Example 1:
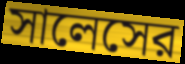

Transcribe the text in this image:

সালেসের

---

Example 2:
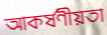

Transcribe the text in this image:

আকর্ষণীয়তা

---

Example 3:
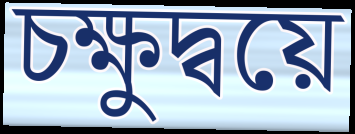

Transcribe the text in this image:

চক্ষুদ্বয়ে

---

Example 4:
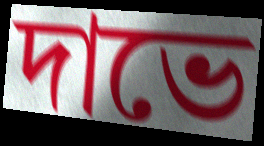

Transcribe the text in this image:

দাভে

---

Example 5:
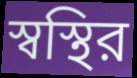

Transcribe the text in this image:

স্বস্থির